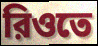
রিওতে